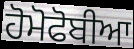
ਹੋਮੋਫੋਬੀਆ